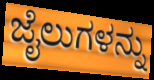
ಜೈಲುಗಳನ್ನು